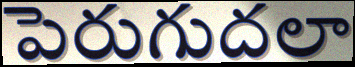
పెరుగుదలా